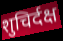
शुचिर्दक्ष